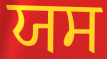
ਯਸ